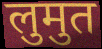
लुमुत